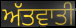
ਅੱਤਵਾਤੀ